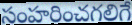
సంహరించగలిగే